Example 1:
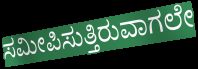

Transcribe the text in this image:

ಸಮೀಪಿಸುತ್ತಿರುವಾಗಲೇ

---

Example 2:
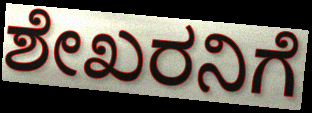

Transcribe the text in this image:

ಶೇಖರನಿಗೆ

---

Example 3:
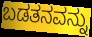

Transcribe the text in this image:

ಬಡತನವನ್ನು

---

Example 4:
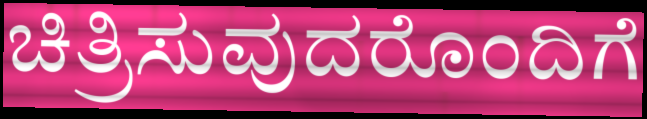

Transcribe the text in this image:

ಚಿತ್ರಿಸುವುದರೊಂದಿಗೆ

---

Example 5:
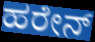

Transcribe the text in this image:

ಹರೇನ್